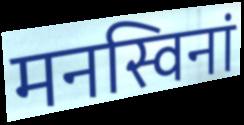
मनस्विनां